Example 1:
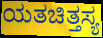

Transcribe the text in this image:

ಯತಚಿತ್ತಸ್ಯ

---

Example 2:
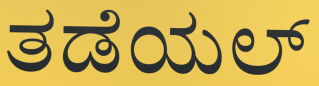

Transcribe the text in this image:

ತಡೆಯಲ್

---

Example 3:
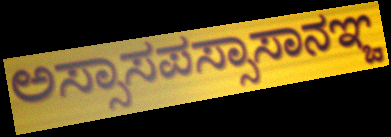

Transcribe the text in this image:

ಅಸ್ಸಾಸಪಸ್ಸಾಸಾನಞ್ಚ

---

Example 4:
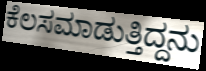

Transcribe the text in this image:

ಕೆಲಸಮಾಡುತ್ತಿದ್ದನು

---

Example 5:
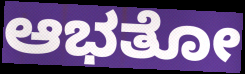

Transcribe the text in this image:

ಆಭತೋ